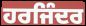
ਹਰਜਿੰਦਰ